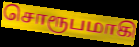
சொரூபமாகி